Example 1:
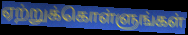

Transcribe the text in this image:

ஏற்றுக்கொள்ளுங்கள்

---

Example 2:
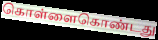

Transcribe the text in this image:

கொள்ளைகொண்டது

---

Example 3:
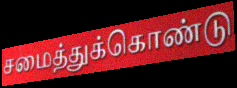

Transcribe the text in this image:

சமைத்துக்கொண்டு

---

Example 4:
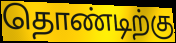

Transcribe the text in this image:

தொண்டிற்கு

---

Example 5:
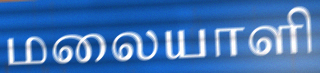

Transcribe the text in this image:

மலையாளி